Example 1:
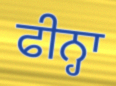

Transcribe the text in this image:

ਫੀਨ੍ਹਾ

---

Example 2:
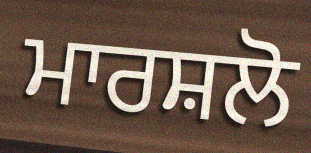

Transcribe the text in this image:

ਮਾਰਸ਼ਲੋ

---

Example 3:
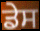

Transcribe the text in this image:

ਡੇਸ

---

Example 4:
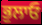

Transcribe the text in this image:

ਭੁਲਾਓ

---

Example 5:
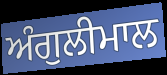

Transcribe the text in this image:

ਅੰਗੁਲੀਮਾਲ